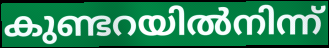
കുണ്ടറയിൽനിന്ന്